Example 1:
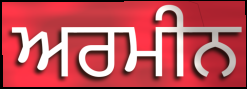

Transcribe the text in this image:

ਅਰਮੀਨ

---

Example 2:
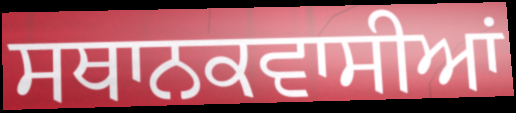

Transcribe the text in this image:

ਸਥਾਨਕਵਾਸੀਆਂ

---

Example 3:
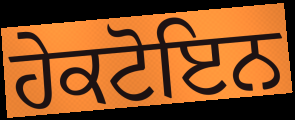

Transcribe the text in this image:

ਹੇਕਟੋਇਨ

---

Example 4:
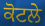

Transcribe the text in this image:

ਕੋਟਲੇ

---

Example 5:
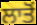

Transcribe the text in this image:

ਲਾਤੋਂ